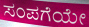
ಸಂಪಗೆಯೇ